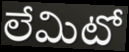
లేమిటో